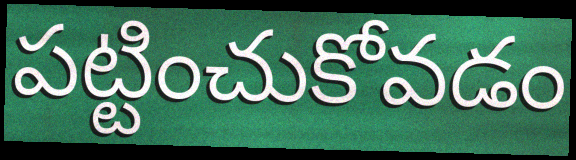
పట్టించుకోవడం